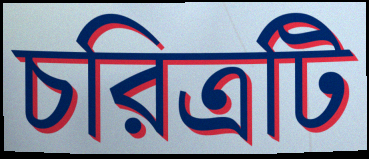
চরিত্রটি